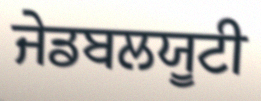
ਜੇਡਬਲਯੂਟੀ